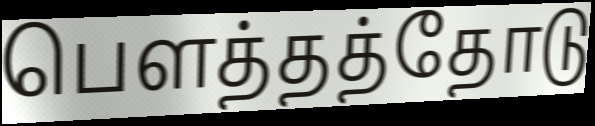
பௌத்தத்தோடு